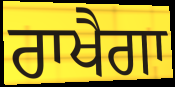
ਰਾਖੈਗਾ